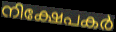
നിക്ഷേപകർ